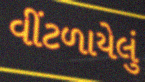
વીંટળાયેલું